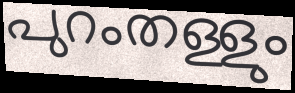
പുറംതള്ളും